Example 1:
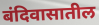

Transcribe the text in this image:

बंदिवासातील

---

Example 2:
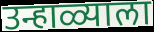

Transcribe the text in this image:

उन्हाळ्याला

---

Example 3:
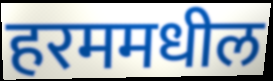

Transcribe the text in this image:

हरममधील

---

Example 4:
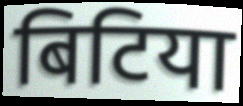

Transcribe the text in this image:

बिटिया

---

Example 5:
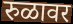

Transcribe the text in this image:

रुळावर